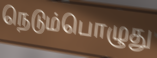
நெடும்பொழுது